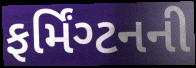
ફર્મિંગ્ટનની